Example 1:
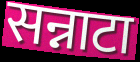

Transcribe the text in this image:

सन्नाटा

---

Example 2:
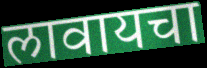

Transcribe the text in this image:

लावायचा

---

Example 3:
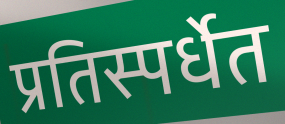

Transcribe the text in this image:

प्रतिस्पर्धेत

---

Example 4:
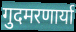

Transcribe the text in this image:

गुदमरणार्या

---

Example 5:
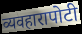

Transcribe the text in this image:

व्यवहारापोटी